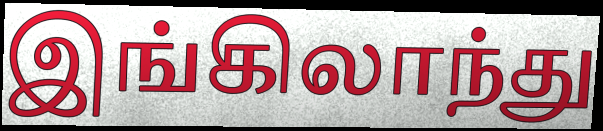
இங்கிலாந்து